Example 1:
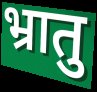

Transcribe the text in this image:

भ्रातु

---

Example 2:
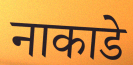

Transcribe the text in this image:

नाकाडे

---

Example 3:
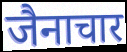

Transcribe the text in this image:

जैनाचार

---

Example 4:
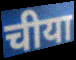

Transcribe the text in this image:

चीया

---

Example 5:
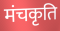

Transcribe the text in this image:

मंचकृति